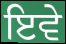
ਇਵੇ